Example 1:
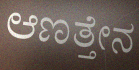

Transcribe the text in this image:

ಆಣತ್ತೇನ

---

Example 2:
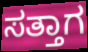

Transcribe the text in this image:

ಸತ್ತಾಗ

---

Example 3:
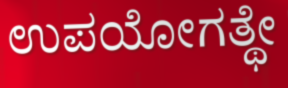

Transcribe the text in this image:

ಉಪಯೋಗತ್ಥೇ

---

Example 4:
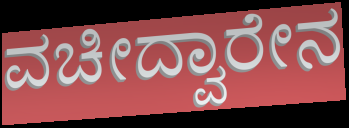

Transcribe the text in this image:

ವಚೀದ್ವಾರೇನ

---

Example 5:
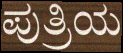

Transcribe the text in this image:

ಪುತ್ರಿಯ